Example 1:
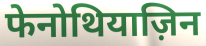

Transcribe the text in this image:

फेनोथियाज़िन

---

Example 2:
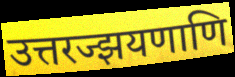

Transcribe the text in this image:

उत्तरज्झयणाणि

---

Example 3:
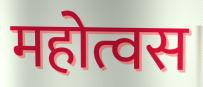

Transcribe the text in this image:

महोत्वस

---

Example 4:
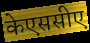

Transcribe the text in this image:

केएससीए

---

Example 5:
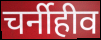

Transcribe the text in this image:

चर्नीहीव